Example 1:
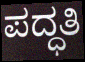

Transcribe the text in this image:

ಪದ್ಧತಿ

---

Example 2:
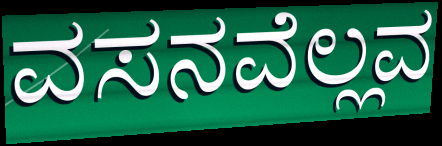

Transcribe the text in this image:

ವಸನವೆಲ್ಲವ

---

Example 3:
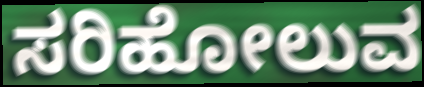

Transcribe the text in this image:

ಸರಿಹೋಲುವ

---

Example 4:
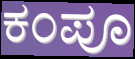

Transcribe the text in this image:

ಕಂಪೂ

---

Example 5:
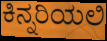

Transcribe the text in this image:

ಕಿನ್ನರಿಯಲಿ